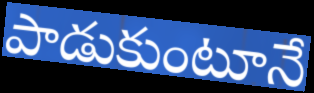
పాడుకుంటూనే